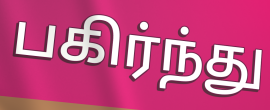
பகிர்ந்து